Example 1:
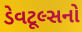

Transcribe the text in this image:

ડેવટૂલ્સનો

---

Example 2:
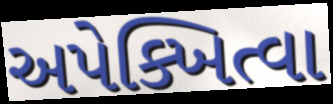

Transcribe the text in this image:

અપેક્ખિત્વા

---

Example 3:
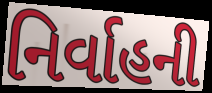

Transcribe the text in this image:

નિર્વાહની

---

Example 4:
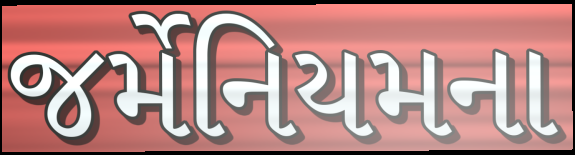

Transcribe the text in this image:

જર્મેનિયમના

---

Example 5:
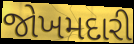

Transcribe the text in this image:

જોખમદારી